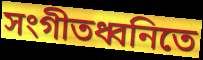
সংগীতধ্বনিতে